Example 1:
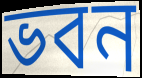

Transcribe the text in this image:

ভবন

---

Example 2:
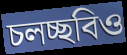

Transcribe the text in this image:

চলচ্ছবিও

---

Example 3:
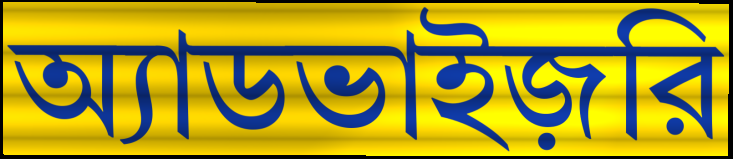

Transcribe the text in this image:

অ্যাডভাইজ়রি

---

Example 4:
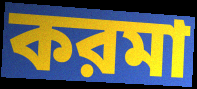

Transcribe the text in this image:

করমা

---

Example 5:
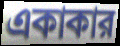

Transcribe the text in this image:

একাকার